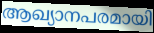
ആഖ്യാനപരമായി